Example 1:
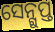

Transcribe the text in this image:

ସେନ୍ଗୁପ୍ତ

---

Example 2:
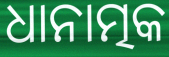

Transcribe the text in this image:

ଧାନାତ୍ମକ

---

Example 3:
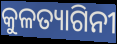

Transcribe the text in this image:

କୁଳତ୍ୟାଗିନୀ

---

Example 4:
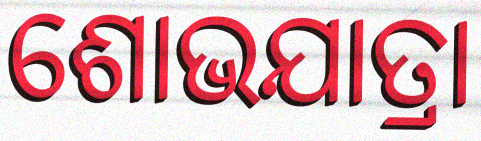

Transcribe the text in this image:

ଶୋଭଯାତ୍ରା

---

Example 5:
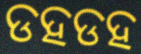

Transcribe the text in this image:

ଡହଡହ